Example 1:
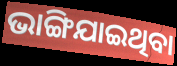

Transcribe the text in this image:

ଭାଙ୍ଗିଯାଇଥିବା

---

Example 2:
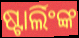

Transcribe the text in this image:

ଷ୍ଟାର୍ଲିଂଙ୍କ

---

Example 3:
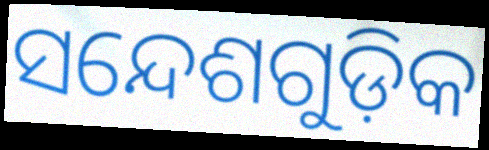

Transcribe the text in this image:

ସନ୍ଦେଶଗୁଡ଼ିକ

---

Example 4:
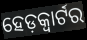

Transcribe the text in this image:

ହେଡ଼କ୍ୱାର୍ଟର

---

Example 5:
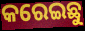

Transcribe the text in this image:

କରେଇଛୁ